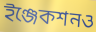
ইঞ্জেকশনও